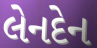
લેનદેન